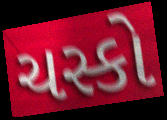
ચસ્કો